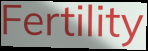
Fertility